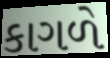
કાગળે